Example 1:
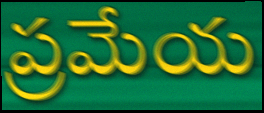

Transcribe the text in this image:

ప్రమేయ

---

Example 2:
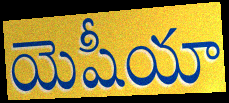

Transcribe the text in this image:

యెషీయా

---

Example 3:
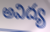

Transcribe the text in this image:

అవిద్య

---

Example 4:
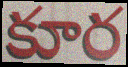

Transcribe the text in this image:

కూర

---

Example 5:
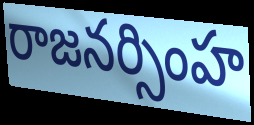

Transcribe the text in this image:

రాజనర్సింహ